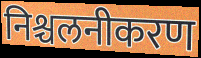
निश्चलनीकरण